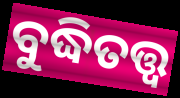
ବୁଦ୍ଧିତତ୍ତ୍ବ